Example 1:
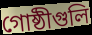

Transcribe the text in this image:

গোষ্ঠীগুলি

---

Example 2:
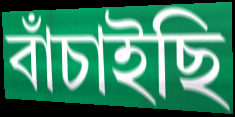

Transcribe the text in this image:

বাঁচাইছি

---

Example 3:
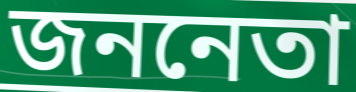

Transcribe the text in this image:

জননেতা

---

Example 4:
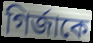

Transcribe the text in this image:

গির্জাকে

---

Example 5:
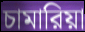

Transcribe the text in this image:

চামারিয়া